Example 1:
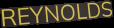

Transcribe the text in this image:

REYNOLDS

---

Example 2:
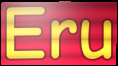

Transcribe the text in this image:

Eru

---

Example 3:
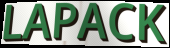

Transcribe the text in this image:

LAPACK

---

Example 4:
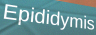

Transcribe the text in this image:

Epididymis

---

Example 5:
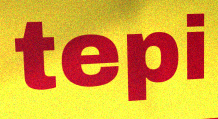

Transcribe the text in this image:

tepi